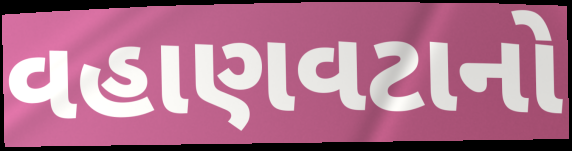
વહાણવટાનો